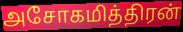
அசோகமித்திரன்